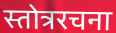
स्तोत्ररचना